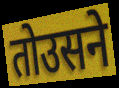
तोउसने